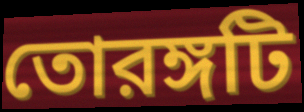
তোরঙ্গটি